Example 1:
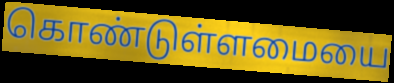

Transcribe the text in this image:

கொண்டுள்ளமையை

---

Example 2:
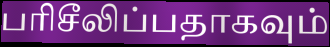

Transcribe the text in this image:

பரிசீலிப்பதாகவும்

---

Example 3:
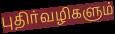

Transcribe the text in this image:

புதிர்வழிகளும்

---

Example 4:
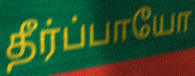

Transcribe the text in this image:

தீர்ப்பாயோ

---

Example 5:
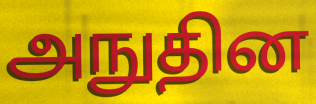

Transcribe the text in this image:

அநுதின